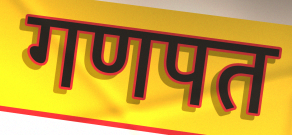
गणपत